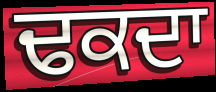
ਢਕਦਾ